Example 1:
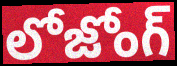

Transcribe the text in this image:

లోజోంగ్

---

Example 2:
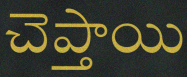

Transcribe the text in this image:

చెప్తాయి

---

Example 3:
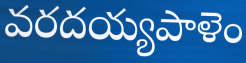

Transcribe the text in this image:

వరదయ్యపాళెం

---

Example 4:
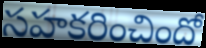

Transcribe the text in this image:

సహకరించిందో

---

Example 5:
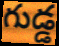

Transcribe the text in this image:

గుడ్డ